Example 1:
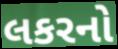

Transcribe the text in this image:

લકરનો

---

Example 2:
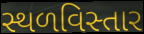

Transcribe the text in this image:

સ્થળવિસ્તાર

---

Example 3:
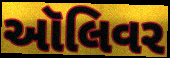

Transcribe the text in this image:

ઑલિવર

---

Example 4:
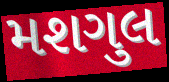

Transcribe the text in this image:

મશગુલ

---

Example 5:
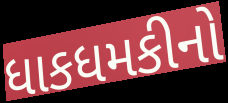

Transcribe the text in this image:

ધાકધમકીનો